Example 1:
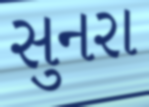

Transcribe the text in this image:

સુનરા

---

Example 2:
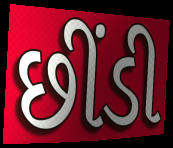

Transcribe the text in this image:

છીંડી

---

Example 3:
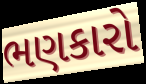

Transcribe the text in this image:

ભણકારો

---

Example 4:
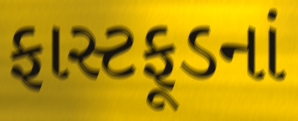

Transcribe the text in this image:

ફાસ્ટફૂડનાં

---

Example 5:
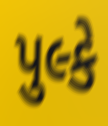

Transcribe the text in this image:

પુલ્કે